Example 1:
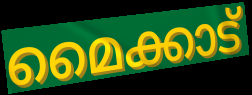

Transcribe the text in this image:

മൈക്കാട്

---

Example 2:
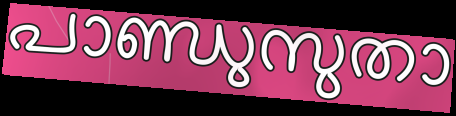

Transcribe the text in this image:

പാണ്ഡുസുതാ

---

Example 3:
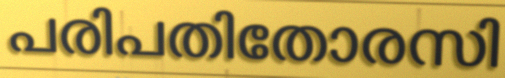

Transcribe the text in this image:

പരിപതിതോരസി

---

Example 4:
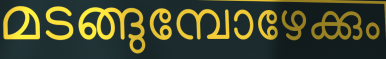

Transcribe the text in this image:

മടങ്ങുമ്പോഴേക്കും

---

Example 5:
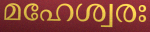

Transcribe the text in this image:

മഹേശ്വരഃ